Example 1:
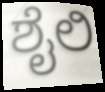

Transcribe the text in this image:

ಶೈಲಿ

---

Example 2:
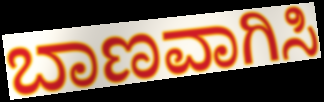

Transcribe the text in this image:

ಬಾಣವಾಗಿಸಿ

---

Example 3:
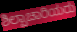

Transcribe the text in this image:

ಶಿಲ್ಪಾಚಾರಿಯರು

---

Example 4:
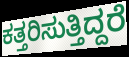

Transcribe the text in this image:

ಕತ್ತರಿಸುತ್ತಿದ್ದರೆ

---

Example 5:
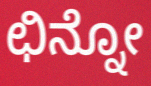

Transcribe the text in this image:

ಛಿನ್ನೋ